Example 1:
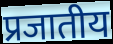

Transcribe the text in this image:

प्रजातीय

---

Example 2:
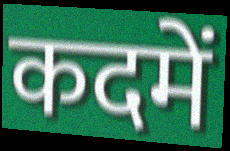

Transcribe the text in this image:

कदमें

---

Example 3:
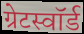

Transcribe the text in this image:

ग्रेटस्वॉर्ड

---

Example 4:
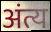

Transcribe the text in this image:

अंत्य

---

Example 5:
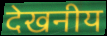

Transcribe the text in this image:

देखनीय